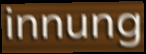
innung